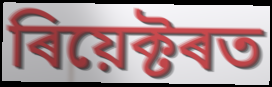
ৰিয়েক্টৰত